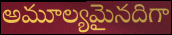
అమూల్యమైనదిగా